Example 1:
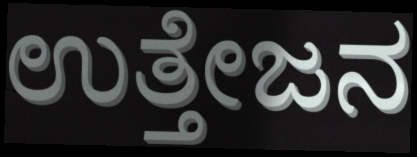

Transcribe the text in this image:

ಉತ್ತೇಜನ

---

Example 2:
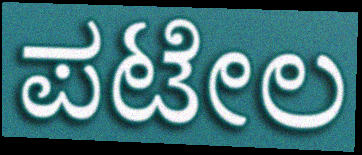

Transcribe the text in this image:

ಪಟೇಲ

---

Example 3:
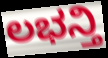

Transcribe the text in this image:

ಲಭನ್ತಿ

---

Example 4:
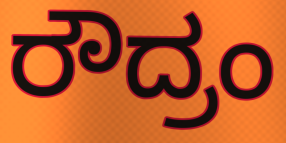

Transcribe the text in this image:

ರೌದ್ರಂ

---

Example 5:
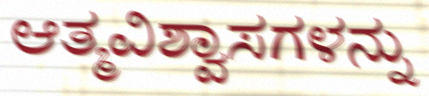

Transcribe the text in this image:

ಆತ್ಮವಿಶ್ವಾಸಗಳನ್ನು